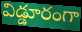
విడ్డూరంగా